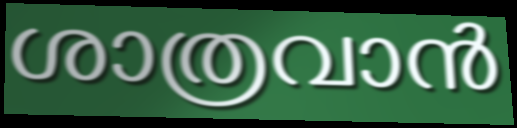
ശാത്രവാൻ